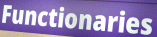
Functionaries